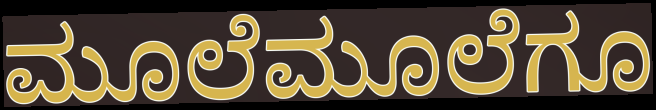
ಮೂಲೆಮೂಲೆಗೂ